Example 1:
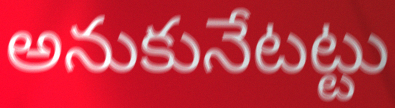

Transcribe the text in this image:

అనుకునేటట్టు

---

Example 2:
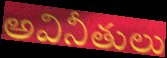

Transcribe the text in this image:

అవినీతులు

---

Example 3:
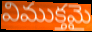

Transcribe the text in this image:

విముక్తమై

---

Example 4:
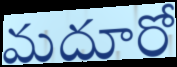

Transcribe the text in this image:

మదూరో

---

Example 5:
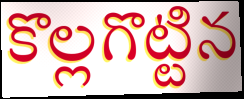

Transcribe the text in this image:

కొల్లగొట్టిన